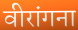
वीरांगना